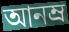
আনম্র